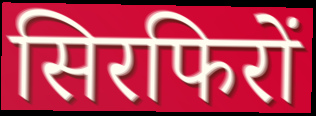
सिरफिरों